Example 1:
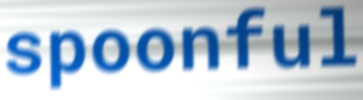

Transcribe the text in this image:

spoonful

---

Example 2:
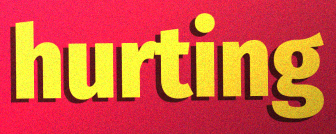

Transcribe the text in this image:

hurting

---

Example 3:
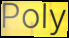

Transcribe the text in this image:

Poly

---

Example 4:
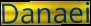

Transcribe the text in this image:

Danaei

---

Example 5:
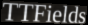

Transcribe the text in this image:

TTFields